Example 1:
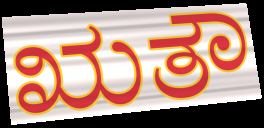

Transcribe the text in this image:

ಋತೌ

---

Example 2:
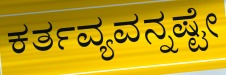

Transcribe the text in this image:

ಕರ್ತವ್ಯವನ್ನಷ್ಟೇ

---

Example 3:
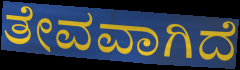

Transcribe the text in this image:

ತೇವವಾಗಿದೆ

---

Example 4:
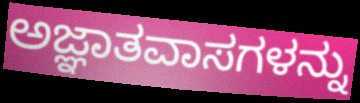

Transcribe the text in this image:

ಅಜ್ಞಾತವಾಸಗಳನ್ನು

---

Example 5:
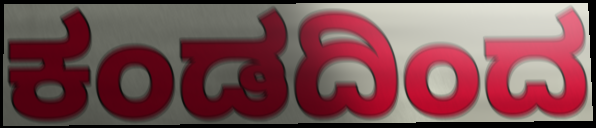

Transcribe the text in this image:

ಕಂಡದಿಂದ